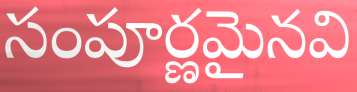
సంపూర్ణమైనవి